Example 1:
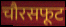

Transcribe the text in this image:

चौरसफूट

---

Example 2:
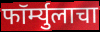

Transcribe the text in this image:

फॉर्म्युलाचा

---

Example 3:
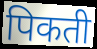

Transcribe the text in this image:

पिकती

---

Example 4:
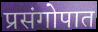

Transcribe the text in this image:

प्रसंगोपात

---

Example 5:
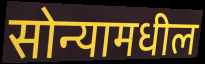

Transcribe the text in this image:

सोन्यामधील